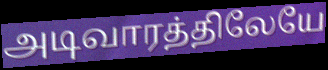
அடிவாரத்திலேயே